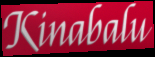
Kinabalu